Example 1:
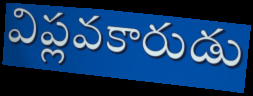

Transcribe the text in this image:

విప్లవకారుడు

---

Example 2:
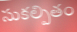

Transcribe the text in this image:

సుకల్పితం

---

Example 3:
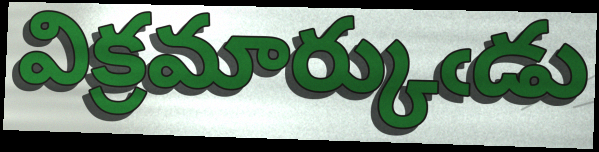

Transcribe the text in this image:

విక్రమార్కుఁడు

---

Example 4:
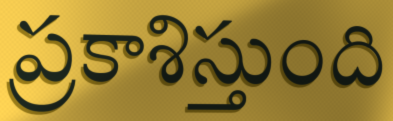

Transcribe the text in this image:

ప్రకాశిస్తుంది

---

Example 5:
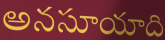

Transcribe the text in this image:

అనసూయాది